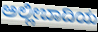
ಅಲ್ಲೀಬಾದಿಯ